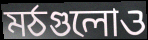
মঠগুলোও